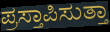
ಪ್ರಸ್ತಾಪಿಸುತ್ತಾ